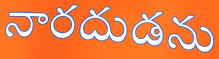
నారదుడను